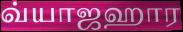
வ்யாஜஹார